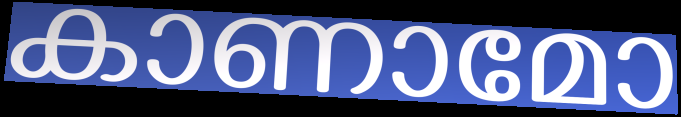
കാണാമോ